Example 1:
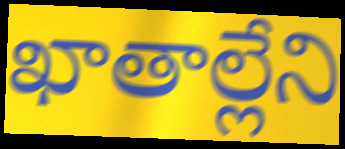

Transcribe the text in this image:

ఖాతాల్లేని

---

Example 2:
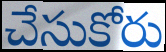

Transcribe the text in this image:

చేసుకోరు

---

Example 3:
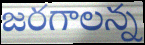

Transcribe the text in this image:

జరగాలన్న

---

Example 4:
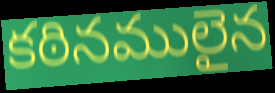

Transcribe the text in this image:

కఠినములైన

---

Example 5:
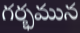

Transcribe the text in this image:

గర్భమున